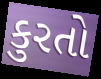
કુરતો